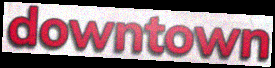
downtown